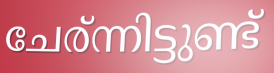
ചേര്ന്നിട്ടുണ്ട്